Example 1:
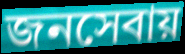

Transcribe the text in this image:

জনসেবায়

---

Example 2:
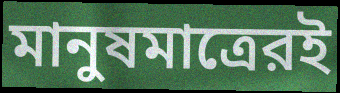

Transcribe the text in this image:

মানুষমাত্রেরই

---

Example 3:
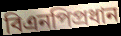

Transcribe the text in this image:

বিএনপিপ্রধান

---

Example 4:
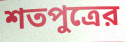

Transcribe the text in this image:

শতপুত্রের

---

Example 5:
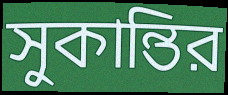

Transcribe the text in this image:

সুকান্তির